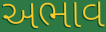
અભાવ